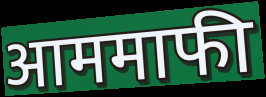
आममाफी